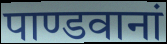
पाण्डवानां